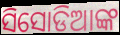
ସିସୋଡିଆଙ୍କ